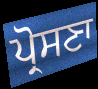
ਪ੍ਰੋਸਣਾ